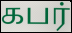
கபர்